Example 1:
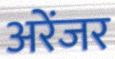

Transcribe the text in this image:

अरेंजर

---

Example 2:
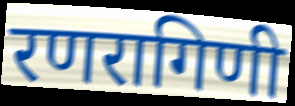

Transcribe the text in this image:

रणरागिणी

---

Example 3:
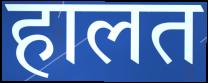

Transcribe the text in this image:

हालत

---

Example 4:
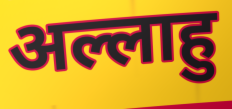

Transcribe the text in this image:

अल्लाहु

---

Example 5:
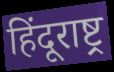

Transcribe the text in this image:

हिंदूराष्ट्र